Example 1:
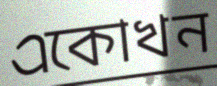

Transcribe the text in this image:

একোখন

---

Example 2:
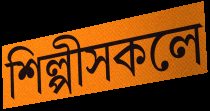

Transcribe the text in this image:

শিল্পীসকলে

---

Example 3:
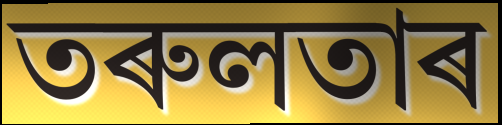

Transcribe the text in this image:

তৰুলতাৰ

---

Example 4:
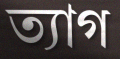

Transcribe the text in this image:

ত্যাগ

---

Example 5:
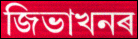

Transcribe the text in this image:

জিভাখনৰ